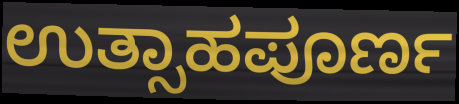
ಉತ್ಸಾಹಪೂರ್ಣ